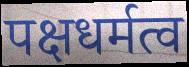
पक्षधर्मत्व